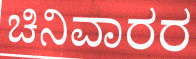
ಚಿನಿವಾರರ